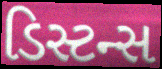
ડિસ્ટન્સ